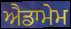
ਐਡਾਮੇਮ